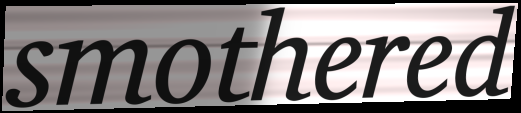
smothered